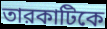
তারকাটিকে